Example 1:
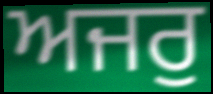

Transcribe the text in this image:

ਅਜਰੁ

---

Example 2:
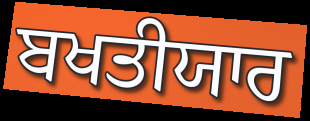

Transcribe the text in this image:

ਬਖਤੀਯਾਰ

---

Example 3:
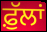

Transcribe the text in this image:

ਫ਼ੁੱਲਾਂ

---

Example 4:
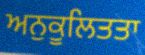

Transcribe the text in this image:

ਅਨੁਕੂਲਿਤਤਾ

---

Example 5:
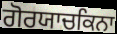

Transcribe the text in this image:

ਗੋਰਯਾਚਕਿਨਾ